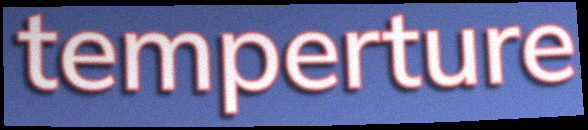
temperture